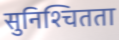
सुनिश्चितता